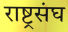
राष्ट्रसंघ